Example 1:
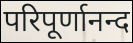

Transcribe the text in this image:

परिपूर्णानन्द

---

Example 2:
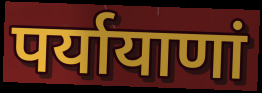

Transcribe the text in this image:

पर्यायाणां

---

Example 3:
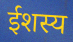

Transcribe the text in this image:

ईशस्य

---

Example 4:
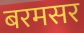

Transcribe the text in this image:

बरमसर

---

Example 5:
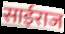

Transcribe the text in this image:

साईराज